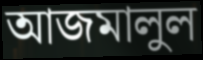
আজমালুল